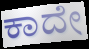
ಕಾದೇ